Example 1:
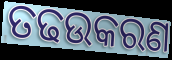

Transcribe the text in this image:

ତଢଉକରଣ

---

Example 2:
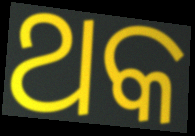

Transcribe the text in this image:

ଥକ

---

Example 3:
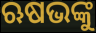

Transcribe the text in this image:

ଋଷଭଙ୍କୁ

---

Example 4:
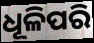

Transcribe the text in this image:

ଧୂଳିପରି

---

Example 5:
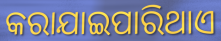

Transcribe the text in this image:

କରାଯାଇପାରିଥାଏ